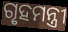
ଗୃହମନ୍ତ୍ରୀ